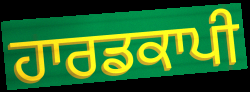
ਹਾਰਡਕਾਪੀ